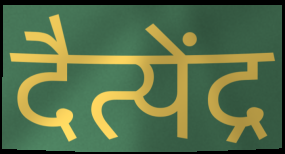
दैत्येंद्र